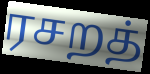
ரசறத்